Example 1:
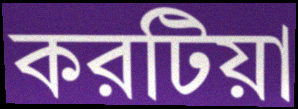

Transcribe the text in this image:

করটিয়া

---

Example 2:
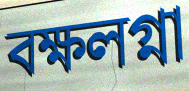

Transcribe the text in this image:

বক্ষলগ্না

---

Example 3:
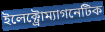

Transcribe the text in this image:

ইলেক্ট্রোম্যাগনেটিক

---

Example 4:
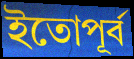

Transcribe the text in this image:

ইতোপূর্ব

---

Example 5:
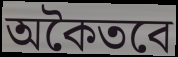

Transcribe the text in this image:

অকৈতবে